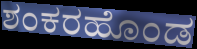
ಶಂಕರಹೊಂಡ